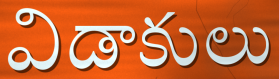
విడాకులు